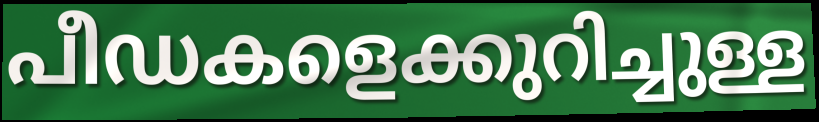
പീഡകളെക്കുറിച്ചുള്ള